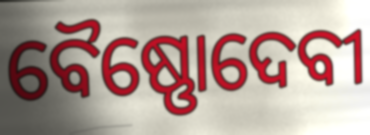
ବୈଷ୍ଣୋଦେବୀ